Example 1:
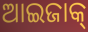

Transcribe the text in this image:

ଆଇଜାକ୍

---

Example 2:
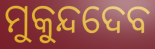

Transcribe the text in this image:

ମୁକୁନ୍ଦଦେବ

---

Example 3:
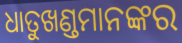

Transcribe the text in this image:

ଧାତୁଖଣ୍ଡମାନଙ୍କର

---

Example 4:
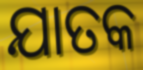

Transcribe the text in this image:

ଯାତକ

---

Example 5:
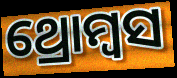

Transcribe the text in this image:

ଥ୍ରୋମ୍ବସ